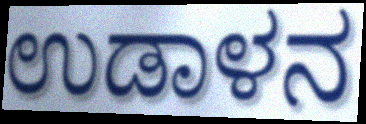
ಉಡಾಳನ